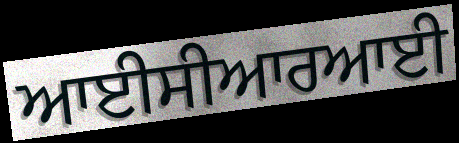
ਆਈਸੀਆਰਆਈ